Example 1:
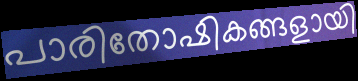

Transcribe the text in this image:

പാരിതോഷികങ്ങളായി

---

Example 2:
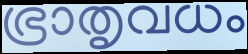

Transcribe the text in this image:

ഭ്രാതൃവധം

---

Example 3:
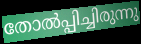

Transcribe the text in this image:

തോൽപ്പിച്ചിരുന്നു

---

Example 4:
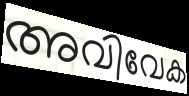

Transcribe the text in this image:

അവിവേക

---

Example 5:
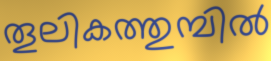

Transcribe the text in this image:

തൂലികത്തുമ്പിൽ